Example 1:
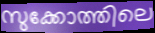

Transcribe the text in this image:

സുക്കോത്തിലെ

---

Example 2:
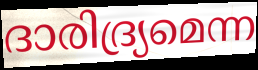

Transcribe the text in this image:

ദാരിദ്ര്യമെന്ന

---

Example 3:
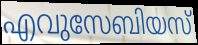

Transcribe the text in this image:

എവുസേബിയസ്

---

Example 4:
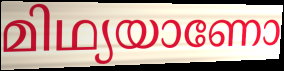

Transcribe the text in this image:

മിഥ്യയാണോ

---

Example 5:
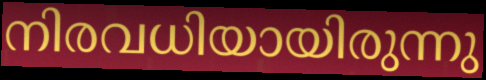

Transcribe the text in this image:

നിരവധിയായിരുന്നു